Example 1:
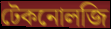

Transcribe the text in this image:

টেকনোলজি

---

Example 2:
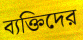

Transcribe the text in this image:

ব্যক্তিদের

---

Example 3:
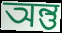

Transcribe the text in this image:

অন্তু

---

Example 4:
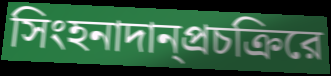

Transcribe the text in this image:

সিংহনাদান্প্রচক্রিরে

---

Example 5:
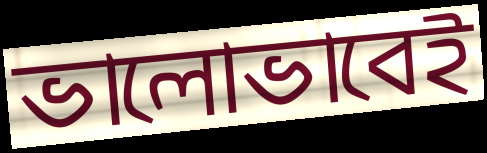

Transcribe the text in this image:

ভালোভাবেই